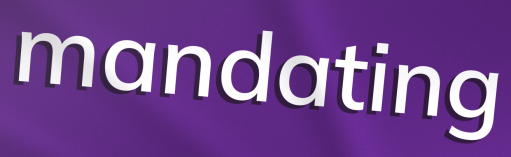
mandating